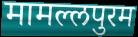
मामल्लपुरम